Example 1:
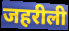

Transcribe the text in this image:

जहरीली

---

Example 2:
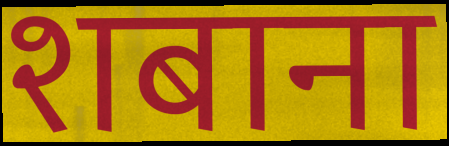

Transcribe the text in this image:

शबाना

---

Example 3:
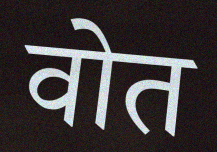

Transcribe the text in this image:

वोत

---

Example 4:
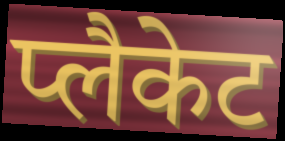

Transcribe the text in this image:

प्लैकेट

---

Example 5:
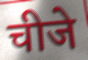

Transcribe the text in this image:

चीजे